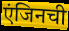
एंजिनची